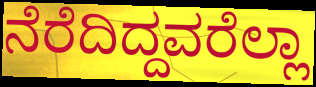
ನೆರೆದಿದ್ದವರೆಲ್ಲಾ